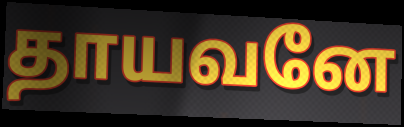
தாயவனே